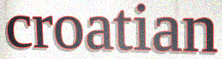
croatian